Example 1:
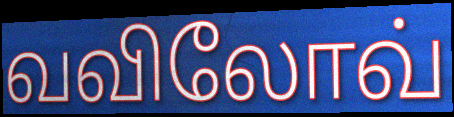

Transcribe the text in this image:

வவிலோவ்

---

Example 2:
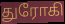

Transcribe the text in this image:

துரோகி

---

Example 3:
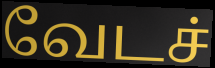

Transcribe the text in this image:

வேடச்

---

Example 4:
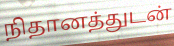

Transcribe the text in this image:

நிதானத்துடன்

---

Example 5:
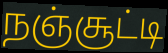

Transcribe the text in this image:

நஞ்சூட்டி